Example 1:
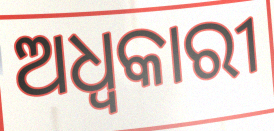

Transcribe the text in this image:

ଅଧ୍ବକାରୀ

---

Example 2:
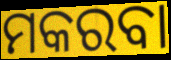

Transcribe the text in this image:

ମକରବା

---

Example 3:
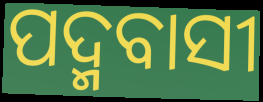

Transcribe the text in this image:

ପଦ୍ମବାସୀ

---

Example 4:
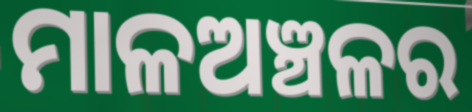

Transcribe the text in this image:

ମାଳଅଞ୍ଚଳର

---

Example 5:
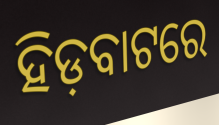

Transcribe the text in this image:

ହିଡ଼ବାଟରେ